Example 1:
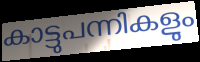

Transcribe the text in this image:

കാട്ടുപന്നികളും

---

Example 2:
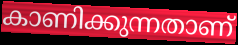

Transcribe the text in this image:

കാണിക്കുന്നതാണ്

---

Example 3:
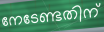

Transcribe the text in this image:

നേടേണ്ടതിന്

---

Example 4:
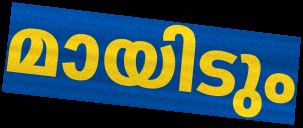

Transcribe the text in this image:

മായിടും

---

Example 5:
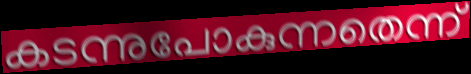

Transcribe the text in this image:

കടന്നുപോകുന്നതെന്ന്